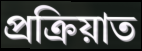
প্ৰক্ৰিয়াত